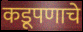
कडूपणाचे